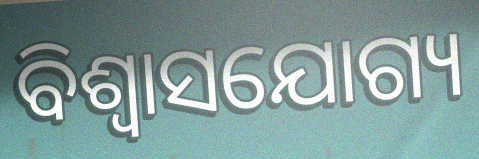
ବିଶ୍ବାସଯୋଗ୍ୟ